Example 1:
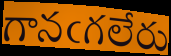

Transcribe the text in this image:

గానఁగలేరు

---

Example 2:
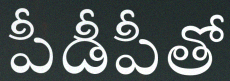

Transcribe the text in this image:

పీడీపీతో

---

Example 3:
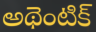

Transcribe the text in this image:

అథెంటిక్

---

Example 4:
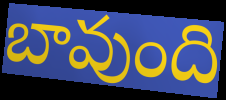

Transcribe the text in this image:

బావుంది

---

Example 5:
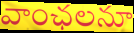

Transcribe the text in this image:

వాంఛలనూ